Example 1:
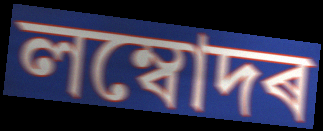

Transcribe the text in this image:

লম্বোদৰ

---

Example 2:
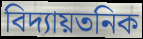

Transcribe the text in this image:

বিদ্যায়তনিক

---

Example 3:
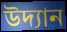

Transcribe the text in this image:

উদ্যান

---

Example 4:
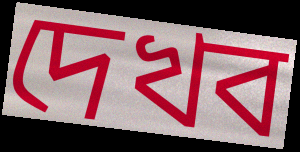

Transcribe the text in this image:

দেখব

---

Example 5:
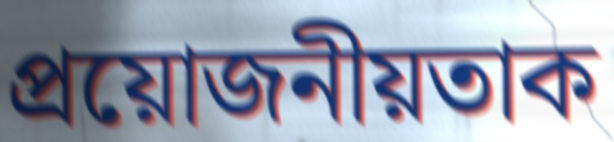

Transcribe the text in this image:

প্ৰয়োজনীয়তাক